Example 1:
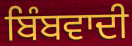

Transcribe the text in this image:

ਬਿੰਬਵਾਦੀ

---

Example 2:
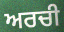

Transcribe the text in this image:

ਅਰਚੀ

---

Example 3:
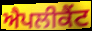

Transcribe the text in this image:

ਐਪਲੀਕੈਂਟ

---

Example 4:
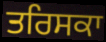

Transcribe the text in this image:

ਤਰਿਸਕਾ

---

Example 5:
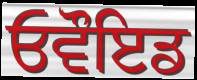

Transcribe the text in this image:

ਓਵੌਇਡ